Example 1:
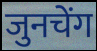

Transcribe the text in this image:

जुनचेंग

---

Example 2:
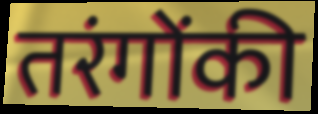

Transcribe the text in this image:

तरंगोंकी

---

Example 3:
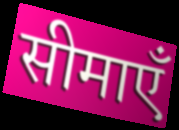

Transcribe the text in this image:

सीमाएँ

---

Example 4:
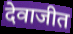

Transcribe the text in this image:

देवाजीत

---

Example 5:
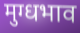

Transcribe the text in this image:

मुग्धभाव